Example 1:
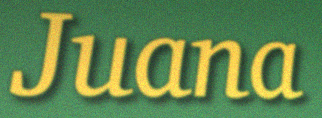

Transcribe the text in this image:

Juana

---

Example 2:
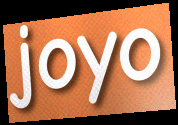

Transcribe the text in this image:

joyo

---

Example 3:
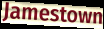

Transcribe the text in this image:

Jamestown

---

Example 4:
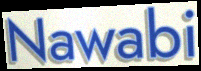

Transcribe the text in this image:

Nawabi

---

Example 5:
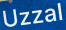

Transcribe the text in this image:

Uzzal